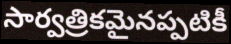
సార్వత్రికమైనప్పటికీ